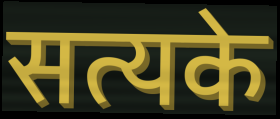
सत्यके